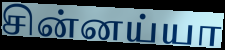
சின்னய்யா